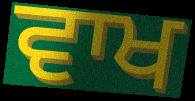
ਵਾਖ